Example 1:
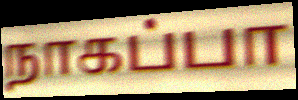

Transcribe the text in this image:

நாகப்பா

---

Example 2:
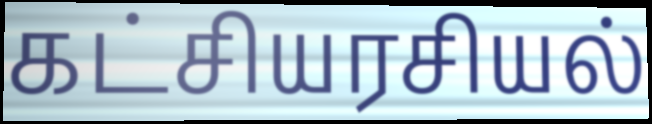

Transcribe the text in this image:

கட்சியரசியல்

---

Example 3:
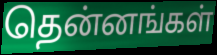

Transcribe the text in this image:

தென்னங்கள்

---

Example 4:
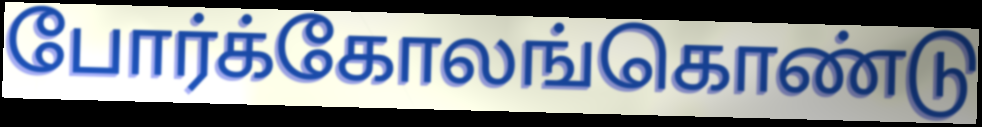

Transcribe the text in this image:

போர்க்கோலங்கொண்டு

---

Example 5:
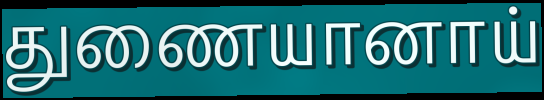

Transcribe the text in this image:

துணையானாய்